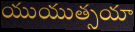
యుయుత్సయా